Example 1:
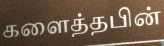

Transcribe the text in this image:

களைத்தபின்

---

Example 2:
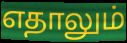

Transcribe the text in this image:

எதாலும்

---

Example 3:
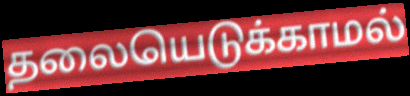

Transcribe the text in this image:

தலையெடுக்காமல்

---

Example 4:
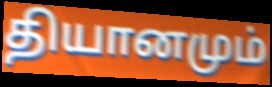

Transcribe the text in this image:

தியானமும்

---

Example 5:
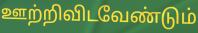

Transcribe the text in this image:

ஊற்றிவிடவேண்டும்